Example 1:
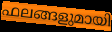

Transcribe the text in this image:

ഫലങ്ങളുമായി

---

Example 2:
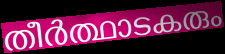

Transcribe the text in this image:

തീർത്ഥാടകരും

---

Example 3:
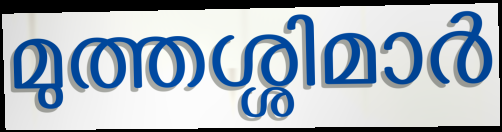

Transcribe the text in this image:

മുത്തശ്ശിമാർ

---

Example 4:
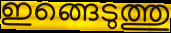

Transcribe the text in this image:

ഇങ്ങെടുത്തു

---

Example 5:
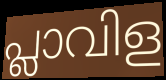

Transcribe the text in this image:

പ്ലാവിള